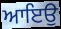
ਆਇਉ